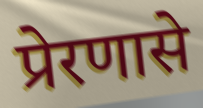
प्रेरणासे